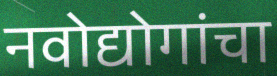
नवोद्योगांचा